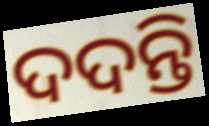
ଦଦନ୍ତି